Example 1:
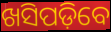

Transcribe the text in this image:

ଖସିପଡ଼ିବେ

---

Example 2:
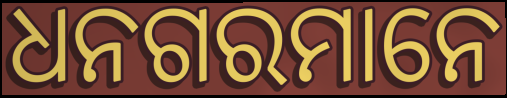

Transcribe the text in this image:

ଧନଗରମାନେ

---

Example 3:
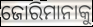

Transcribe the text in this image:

ଜୋରିମାନାକୁ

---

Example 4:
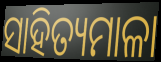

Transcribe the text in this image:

ସାହିତ୍ୟମାଳା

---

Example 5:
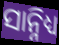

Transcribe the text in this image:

ସାନ୍ନିଧ୍ୟ